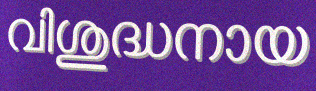
വിശുദ്ധനായ